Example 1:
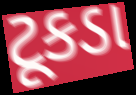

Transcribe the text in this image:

ટૂકડા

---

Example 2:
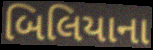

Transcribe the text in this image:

બિલિયાના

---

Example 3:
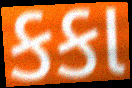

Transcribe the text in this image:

કકા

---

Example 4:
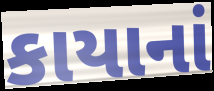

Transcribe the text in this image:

કાયાનાં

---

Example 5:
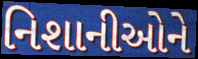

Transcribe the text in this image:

નિશાનીઓને